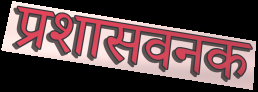
प्रशासवनक